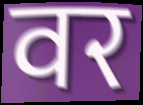
वर